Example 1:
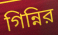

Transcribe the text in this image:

গিন্নির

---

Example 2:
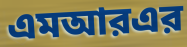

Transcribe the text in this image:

এমআরএর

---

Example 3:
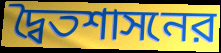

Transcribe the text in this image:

দ্বৈতশাসনের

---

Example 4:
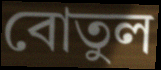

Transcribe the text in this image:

বোতুল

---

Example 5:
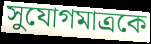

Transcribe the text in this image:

সুযোগমাত্রকে